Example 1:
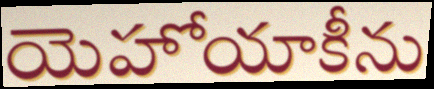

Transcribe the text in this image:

యెహోయాకీను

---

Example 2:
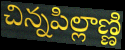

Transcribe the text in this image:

చిన్నపిల్లాణ్ణి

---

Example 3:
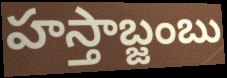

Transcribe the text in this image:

హస్తాబ్జంబు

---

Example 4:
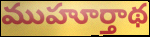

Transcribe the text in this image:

ముహూర్తాథ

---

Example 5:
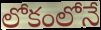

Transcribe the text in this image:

లోకంలోనే